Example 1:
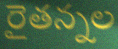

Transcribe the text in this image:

రైతన్నల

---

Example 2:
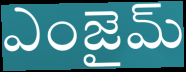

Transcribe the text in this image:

ఎంజైమ్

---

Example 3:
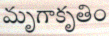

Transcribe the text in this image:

మృగాకృతిం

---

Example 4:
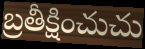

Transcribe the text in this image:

బ్రతీక్షించుచు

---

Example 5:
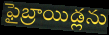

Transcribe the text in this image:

ఫైబ్రాయిడ్లను